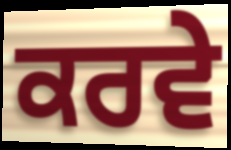
ਕਰਵੇ